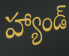
హ్యాండ్